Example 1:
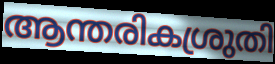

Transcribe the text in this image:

ആന്തരികശ്രുതി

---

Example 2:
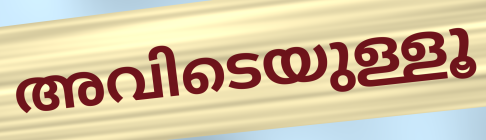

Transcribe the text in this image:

അവിടെയുള്ളൂ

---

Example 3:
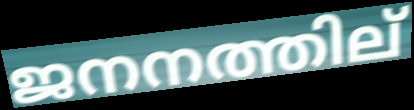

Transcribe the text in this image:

ജനനത്തില്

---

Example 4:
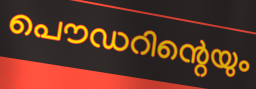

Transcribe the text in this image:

പൌഡറിന്റെയും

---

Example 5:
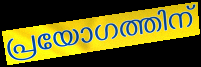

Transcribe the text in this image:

പ്രയോഗത്തിന്